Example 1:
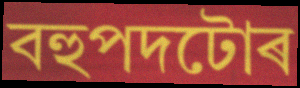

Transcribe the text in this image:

বহুপদটোৰ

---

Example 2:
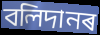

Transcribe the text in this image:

বলিদানৰ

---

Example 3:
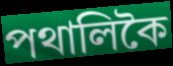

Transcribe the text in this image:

পথালিকৈ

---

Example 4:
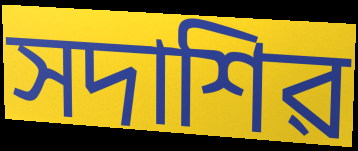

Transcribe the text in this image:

সদাশিৱ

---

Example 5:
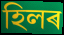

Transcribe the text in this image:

হিলৰ